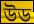
উড